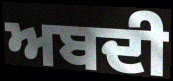
ਅਬਦੀ